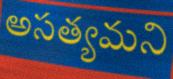
అసత్యమని